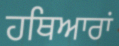
ਹਥਿਆਰਾਂ